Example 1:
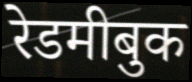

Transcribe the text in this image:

रेडमीबुक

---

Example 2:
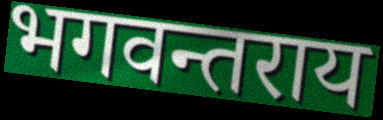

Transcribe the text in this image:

भगवन्तराय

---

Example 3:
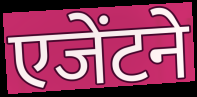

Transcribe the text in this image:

एजेंटने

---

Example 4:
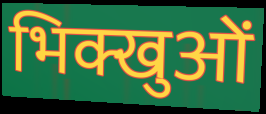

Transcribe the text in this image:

भिक्खुओं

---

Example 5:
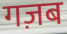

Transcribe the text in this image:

गज़ब